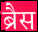
ब्रैस